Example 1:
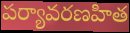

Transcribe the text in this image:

పర్యావరణహిత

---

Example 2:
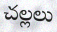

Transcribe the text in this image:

చల్లలు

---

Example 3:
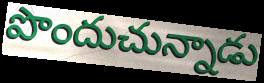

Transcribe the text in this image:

పొందుచున్నాడు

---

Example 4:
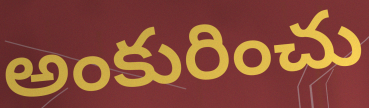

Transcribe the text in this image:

అంకురించు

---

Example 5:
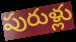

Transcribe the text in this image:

పురుళ్లు